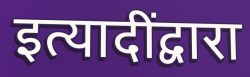
इत्यादींद्वारा